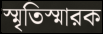
স্মৃতিস্মারক